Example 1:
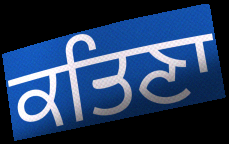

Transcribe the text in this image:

ਕਤਿਣਾ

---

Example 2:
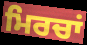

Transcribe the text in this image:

ਮਿਰਚਾਂ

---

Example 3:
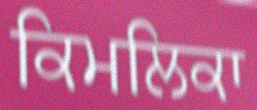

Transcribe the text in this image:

ਕਿਮਲਿਕਾ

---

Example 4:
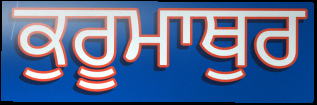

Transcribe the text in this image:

ਕੁਰੂਮਾਥੁਰ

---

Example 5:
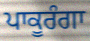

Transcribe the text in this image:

ਪਾਕੂਰੰਗਾ